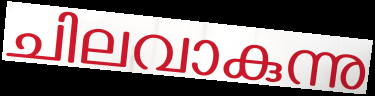
ചിലവാകുന്നു